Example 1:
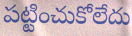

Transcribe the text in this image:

పట్టించుకోలేదు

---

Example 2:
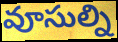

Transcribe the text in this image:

వూసుల్ని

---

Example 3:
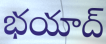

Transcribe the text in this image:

భయాద్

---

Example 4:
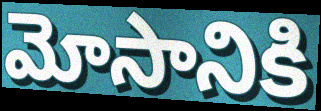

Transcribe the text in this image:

మోసానికి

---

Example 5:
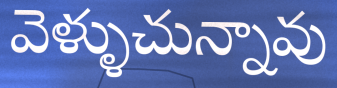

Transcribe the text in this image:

వెళ్ళుచున్నావు